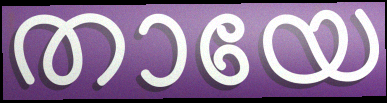
തായേ